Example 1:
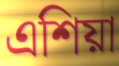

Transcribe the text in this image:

এশিয়া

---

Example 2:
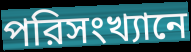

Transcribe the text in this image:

পরিসংখ্যানে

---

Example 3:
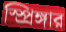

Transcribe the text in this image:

স্প্রিঙ্গার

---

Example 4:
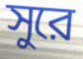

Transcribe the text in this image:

সুরে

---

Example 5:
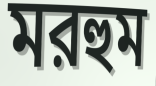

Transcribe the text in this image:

মরহুম